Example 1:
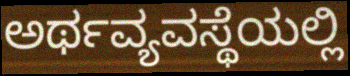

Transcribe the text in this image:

ಅರ್ಥವ್ಯವಸ್ಥೆಯಲ್ಲಿ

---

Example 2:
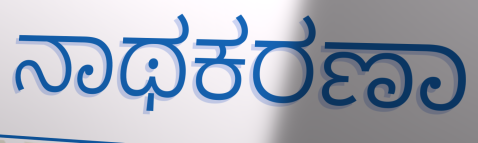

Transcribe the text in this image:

ನಾಥಕರಣಾ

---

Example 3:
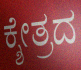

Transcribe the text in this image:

ಕ್ಶೇತ್ರದ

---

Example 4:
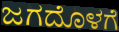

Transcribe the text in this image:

ಜಗದೊಳಗೆ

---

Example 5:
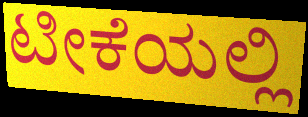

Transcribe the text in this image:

ಟೀಕೆಯಲ್ಲಿ